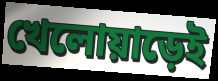
খেলোয়াড়েই